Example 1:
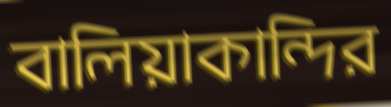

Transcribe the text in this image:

বালিয়াকান্দির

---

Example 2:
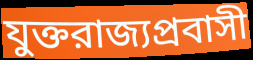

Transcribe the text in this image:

যুক্তরাজ্যপ্রবাসী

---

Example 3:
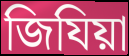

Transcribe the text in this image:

জিযিয়া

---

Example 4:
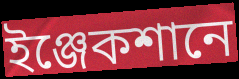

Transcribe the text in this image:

ইঞ্জেকশানে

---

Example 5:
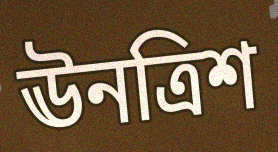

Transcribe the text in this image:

ঊনত্রিশ